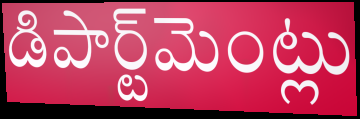
డిపార్ట్‌మెంట్లు